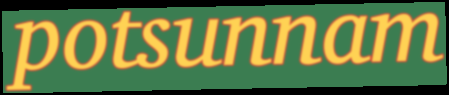
potsunnam